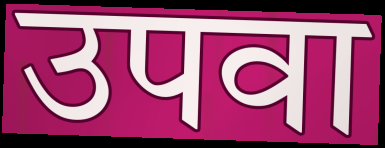
उपवा